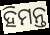
ହିମନ୍ତ